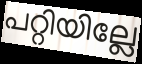
പറ്റിയില്ലേ